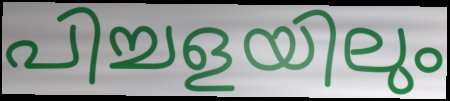
പിച്ചളയിലും